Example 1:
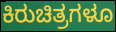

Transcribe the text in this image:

ಕಿರುಚಿತ್ರಗಳೂ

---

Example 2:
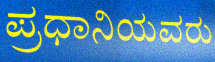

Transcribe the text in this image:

ಪ್ರಧಾನಿಯವರು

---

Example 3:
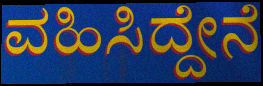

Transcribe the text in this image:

ವಹಿಸಿದ್ದೇನೆ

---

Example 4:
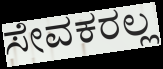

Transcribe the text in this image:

ಸೇವಕರಲ್ಲ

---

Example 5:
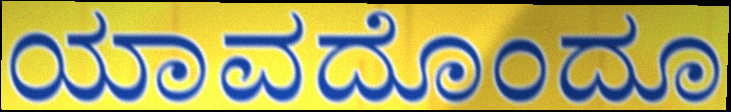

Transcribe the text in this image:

ಯಾವದೊಂದೂ